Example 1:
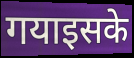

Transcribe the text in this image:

गयाइसके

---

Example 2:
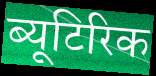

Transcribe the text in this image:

ब्यूटिरिक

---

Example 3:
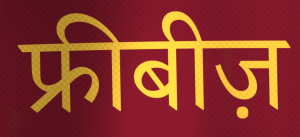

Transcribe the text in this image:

फ्रीबीज़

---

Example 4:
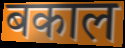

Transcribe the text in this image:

बकाल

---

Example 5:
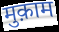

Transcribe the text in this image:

मुक़ाम